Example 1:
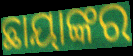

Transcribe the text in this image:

ଛାୟାଙ୍କର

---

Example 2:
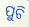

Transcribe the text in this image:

ପୁଚି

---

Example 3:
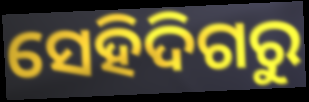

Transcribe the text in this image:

ସେହିଦିଗରୁ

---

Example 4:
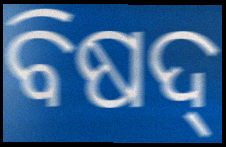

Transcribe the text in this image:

ବିଷଦ୍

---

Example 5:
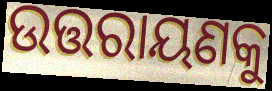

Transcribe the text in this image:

ଉତ୍ତରାୟଣକୁ